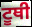
ਟੂਥੀ